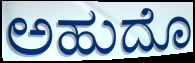
ಅಹುದೊ